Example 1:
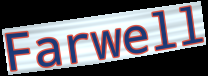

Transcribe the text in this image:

Farwell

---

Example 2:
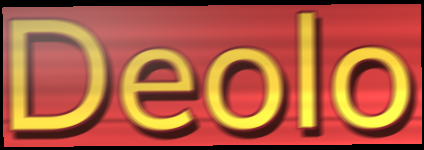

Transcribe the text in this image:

Deolo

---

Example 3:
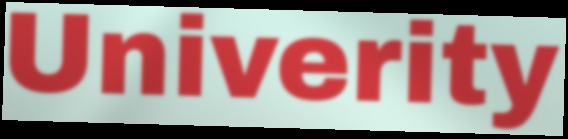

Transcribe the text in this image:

Univerity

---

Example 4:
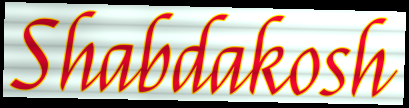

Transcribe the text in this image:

Shabdakosh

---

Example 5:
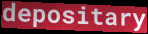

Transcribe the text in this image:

depositary